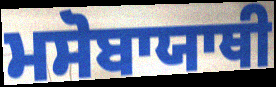
ਮਸੋਬਾਯਾਥੀ